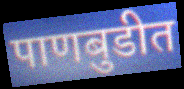
पाणबुडीत